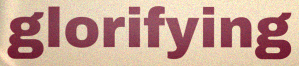
glorifying